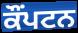
ਕੌਂਪਟਨ